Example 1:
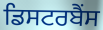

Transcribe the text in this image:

ਡਿਸਟਰਬੈਂਸ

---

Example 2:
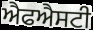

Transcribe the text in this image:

ਐਫਐਸਟੀ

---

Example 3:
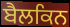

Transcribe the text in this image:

ਬੈਲਕਿਨ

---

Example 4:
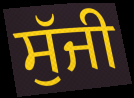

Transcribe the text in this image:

ਸੁੱਜੀ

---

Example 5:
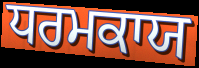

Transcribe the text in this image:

ਧਰਮਕਾਯ